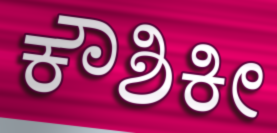
ಕೌಶಿಕೀ